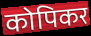
कोपिकर